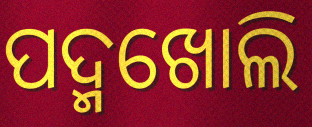
ପଦ୍ମଖୋଲି